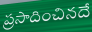
ప్రసాదించినదే